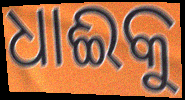
ଧାଈକୁ